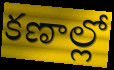
కణాల్లో